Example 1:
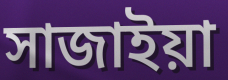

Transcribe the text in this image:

সাজাইয়া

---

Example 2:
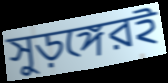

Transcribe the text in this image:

সুড়ঙ্গেরই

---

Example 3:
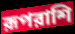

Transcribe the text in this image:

রূপরাশি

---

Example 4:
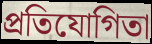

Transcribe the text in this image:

প্রতিযোগিতা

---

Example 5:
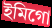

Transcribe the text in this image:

ইমিগো